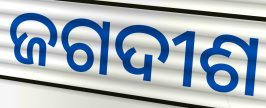
ଜଗଦୀଶ